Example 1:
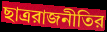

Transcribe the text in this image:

ছাত্ররাজনীতির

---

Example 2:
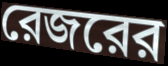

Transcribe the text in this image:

রেজরের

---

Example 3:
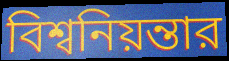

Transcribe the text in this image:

বিশ্বনিয়ন্তার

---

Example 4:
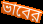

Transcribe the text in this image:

ভাবের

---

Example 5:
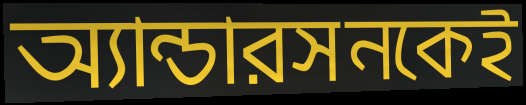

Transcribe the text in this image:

অ্যান্ডারসনকেই